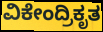
ವಿಕೇಂದ್ರಿಕೃತ